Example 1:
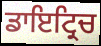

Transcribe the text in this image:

ਡਾਇਟ੍ਰਿਚ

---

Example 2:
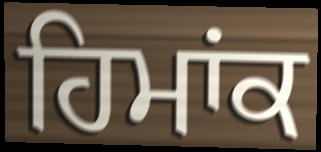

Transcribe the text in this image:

ਹਿਮਾਂਕ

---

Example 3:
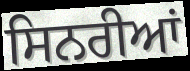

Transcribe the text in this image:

ਸਿਨਰੀਆਂ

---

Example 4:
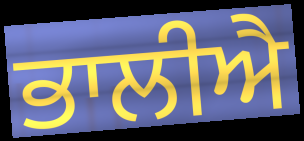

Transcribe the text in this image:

ਭਾਲੀਐ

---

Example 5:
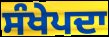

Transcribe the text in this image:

ਸੰਖੇਪਦਾ